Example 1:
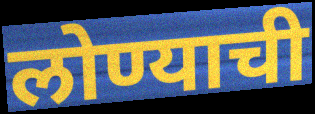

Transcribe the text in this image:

लोण्याची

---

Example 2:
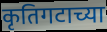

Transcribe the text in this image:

कृतिगटाच्या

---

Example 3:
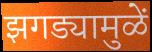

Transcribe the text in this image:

झगड्यामुळें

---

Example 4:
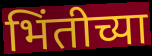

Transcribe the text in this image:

भिंतीच्या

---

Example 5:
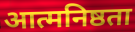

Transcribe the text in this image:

आत्मनिष्ठता